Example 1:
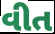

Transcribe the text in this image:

વીત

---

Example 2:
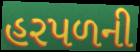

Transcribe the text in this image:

હરપળની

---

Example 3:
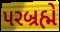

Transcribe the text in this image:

પરબ્રહ્મે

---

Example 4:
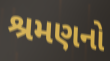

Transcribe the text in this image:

શ્રમણનો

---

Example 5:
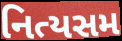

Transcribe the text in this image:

નિત્યસમ